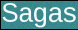
Sagas